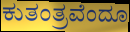
ಕುತಂತ್ರವೆಂದೂ